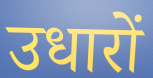
उधारों